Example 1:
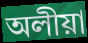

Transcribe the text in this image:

অলীয়া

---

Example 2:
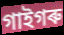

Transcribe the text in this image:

গাইগৰু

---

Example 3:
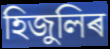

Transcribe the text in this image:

হিজুলিৰ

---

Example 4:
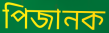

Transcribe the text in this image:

পিজানক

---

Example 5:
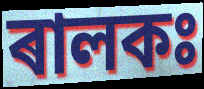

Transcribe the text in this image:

ৰালকঃ